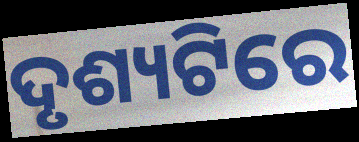
ଦୃଶ୍ୟଟିରେ